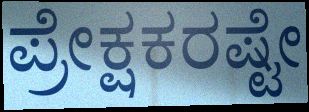
ಪ್ರೇಕ್ಷಕರಷ್ಟೇ